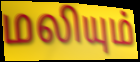
மலியும்